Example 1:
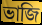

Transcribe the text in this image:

ভাজি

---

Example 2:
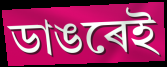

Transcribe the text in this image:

ডাঙৰেই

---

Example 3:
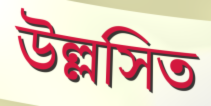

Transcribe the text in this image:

উল্লসিত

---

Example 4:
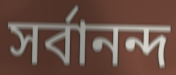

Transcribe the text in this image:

সৰ্বানন্দ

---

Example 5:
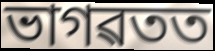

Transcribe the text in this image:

ভাগৱতত